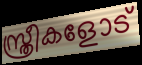
സ്ത്രീകളോട്